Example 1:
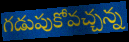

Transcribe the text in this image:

గడుపుకోవచ్చన్న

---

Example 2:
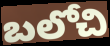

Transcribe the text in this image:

బలోచి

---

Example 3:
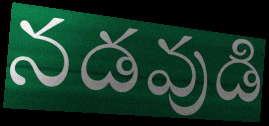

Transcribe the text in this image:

నడవుడి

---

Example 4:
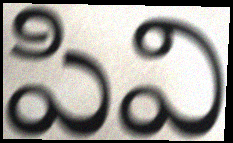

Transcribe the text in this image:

పివి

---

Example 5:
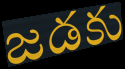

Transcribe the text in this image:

జడకు